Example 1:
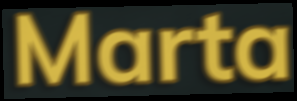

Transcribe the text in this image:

Marta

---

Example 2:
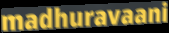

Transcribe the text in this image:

madhuravaani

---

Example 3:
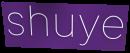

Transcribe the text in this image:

shuye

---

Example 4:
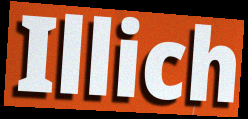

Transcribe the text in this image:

Illich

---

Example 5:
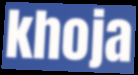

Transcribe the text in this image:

khoja